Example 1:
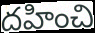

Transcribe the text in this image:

దహించి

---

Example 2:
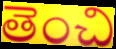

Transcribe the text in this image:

తెంచి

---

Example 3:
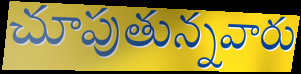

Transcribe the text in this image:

చూపుతున్నవారు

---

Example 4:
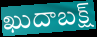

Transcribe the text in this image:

ఖుదాబక్ష్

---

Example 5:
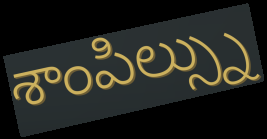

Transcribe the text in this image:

శాంపిల్స్ను